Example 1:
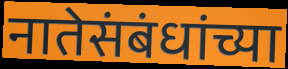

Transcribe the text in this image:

नातेसंबंधांच्या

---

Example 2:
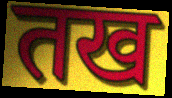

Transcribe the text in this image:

तख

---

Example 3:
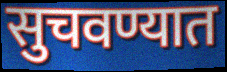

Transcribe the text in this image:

सुचवण्यात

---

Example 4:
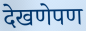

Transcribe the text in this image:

देखणेपण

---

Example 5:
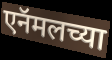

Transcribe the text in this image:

एनॅमलच्या